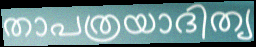
താപത്രയാദിത്യ